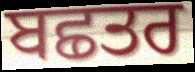
ਬਛਤਰ